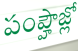
పంప్హౌజ్లో